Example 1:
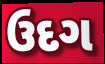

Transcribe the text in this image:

ઉદગ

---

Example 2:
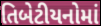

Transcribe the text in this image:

તિબેટીયનોમાં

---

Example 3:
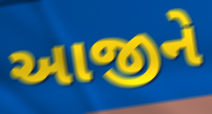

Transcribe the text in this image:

આજીને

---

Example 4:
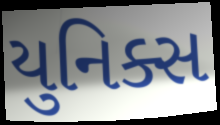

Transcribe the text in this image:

યુનિક્સ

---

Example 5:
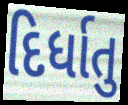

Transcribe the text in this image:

દિર્ધાતુ